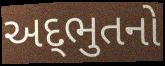
અદ્‌ભુતનો